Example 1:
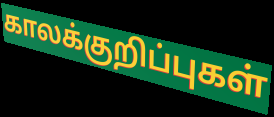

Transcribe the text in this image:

காலக்குறிப்புகள்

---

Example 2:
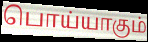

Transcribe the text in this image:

பொய்யாகும்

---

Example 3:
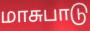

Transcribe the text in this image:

மாசுபாடு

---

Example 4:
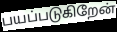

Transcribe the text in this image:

பயப்படுகிறேன்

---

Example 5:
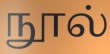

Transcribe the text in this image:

நூல்